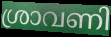
ശ്രാവണി